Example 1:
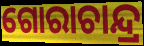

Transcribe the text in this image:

ଗୋରାଚାନ୍ଦ୍ର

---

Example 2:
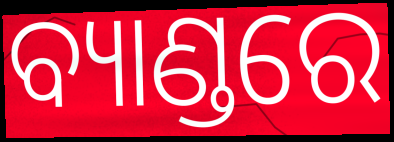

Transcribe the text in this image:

ବ୍ୟାଣ୍ଡରେ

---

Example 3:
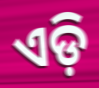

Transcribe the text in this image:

ଏଡ଼ି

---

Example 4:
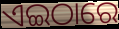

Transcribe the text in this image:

ଏଇଠାରେ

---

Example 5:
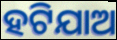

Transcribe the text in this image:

ହଟିଯାଅ